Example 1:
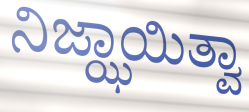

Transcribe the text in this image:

ನಿಜ್ಝಾಯಿತ್ವಾ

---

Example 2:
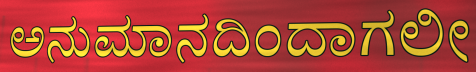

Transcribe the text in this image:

ಅನುಮಾನದಿಂದಾಗಲೀ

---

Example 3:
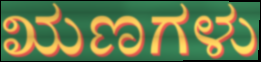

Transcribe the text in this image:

ಋಣಗಳು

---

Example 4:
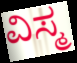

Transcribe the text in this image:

ವಿಸ್ಮ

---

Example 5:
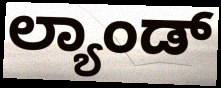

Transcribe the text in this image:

ಲ್ಯಾಂಡ್